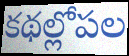
కథల్లోపల